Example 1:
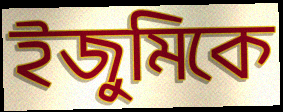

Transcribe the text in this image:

ইজুমিকে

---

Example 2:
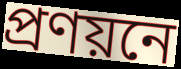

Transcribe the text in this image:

প্রণয়নে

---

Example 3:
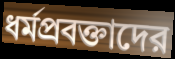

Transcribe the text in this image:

ধর্মপ্রবক্তাদের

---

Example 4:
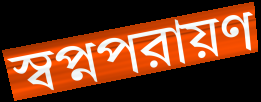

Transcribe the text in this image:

স্বপ্নপরায়ণ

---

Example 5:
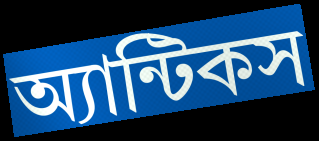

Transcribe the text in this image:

অ্যান্টিকস